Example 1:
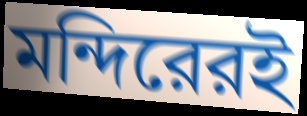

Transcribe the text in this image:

মন্দিরেরই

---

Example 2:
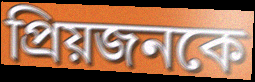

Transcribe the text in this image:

প্রিয়জনকে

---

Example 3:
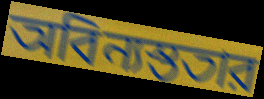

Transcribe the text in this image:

অবিন্যস্ততার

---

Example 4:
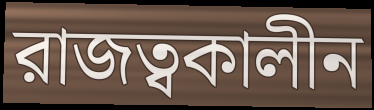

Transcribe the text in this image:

রাজত্বকালীন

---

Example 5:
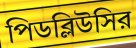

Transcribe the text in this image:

পিডব্লিউসির